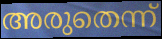
അരുതെന്ന്